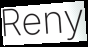
Reny